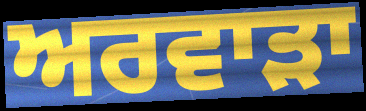
ਅਰਵਾੜਾ